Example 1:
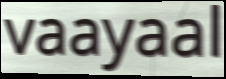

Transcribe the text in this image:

vaayaal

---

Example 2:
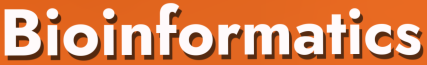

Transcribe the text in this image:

Bioinformatics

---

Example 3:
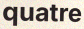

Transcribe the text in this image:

quatre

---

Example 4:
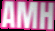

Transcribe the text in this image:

AMH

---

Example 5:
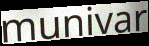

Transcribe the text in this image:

munivar